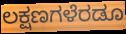
ಲಕ್ಷಣಗಳೆರಡೂ